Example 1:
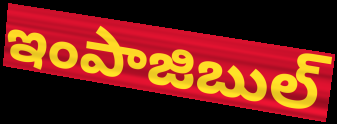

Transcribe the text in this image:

ఇంపాజిబుల్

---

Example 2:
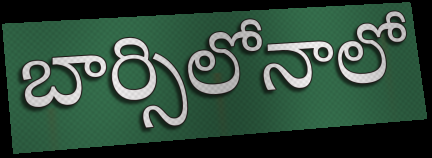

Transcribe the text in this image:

బార్సిలోనాలో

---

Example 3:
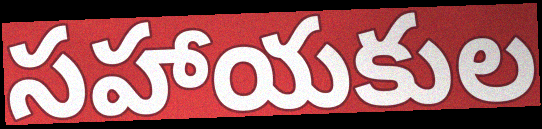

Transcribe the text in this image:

సహాయకుల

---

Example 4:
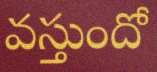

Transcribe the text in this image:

వస్తుందో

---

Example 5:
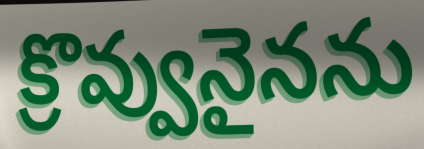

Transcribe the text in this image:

క్రొవ్వునైనను